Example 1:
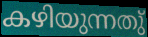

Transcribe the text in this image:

കഴിയുന്നതു്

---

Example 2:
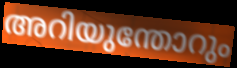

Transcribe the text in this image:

അറിയുന്തോറും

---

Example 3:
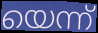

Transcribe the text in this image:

യെന്ന്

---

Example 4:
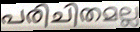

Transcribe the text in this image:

പരിചിതമല്ല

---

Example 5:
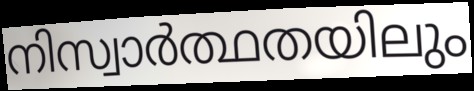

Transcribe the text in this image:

നിസ്വാർത്ഥതയിലും